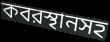
কবরস্থানসহ